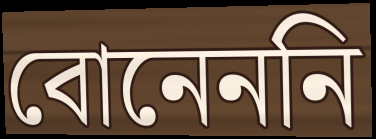
বোনেননি